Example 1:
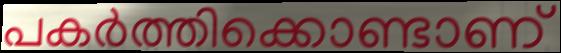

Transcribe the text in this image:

പകർത്തിക്കൊണ്ടാണ്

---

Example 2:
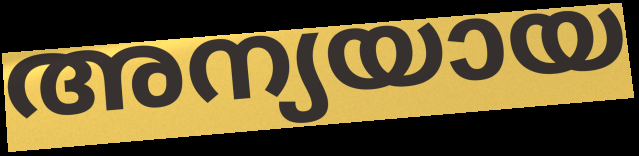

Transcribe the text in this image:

അന്യയായ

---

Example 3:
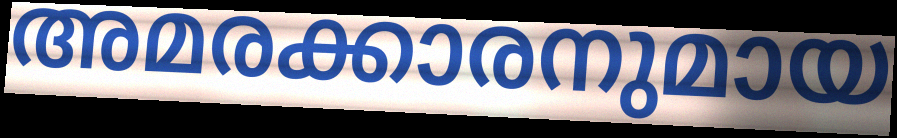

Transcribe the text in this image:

അമരക്കാരനുമായ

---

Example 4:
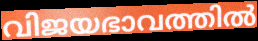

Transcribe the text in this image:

വിജയഭാവത്തിൽ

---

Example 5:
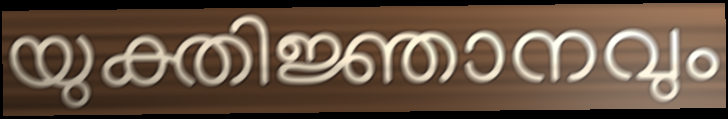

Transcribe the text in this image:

യുക്തിജ്ഞാനവും